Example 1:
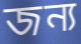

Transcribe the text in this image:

জন্য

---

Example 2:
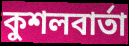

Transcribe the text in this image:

কুশলবার্তা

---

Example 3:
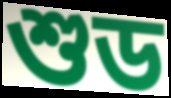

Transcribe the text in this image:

শুড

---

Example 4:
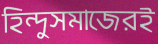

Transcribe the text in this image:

হিন্দুসমাজেরই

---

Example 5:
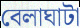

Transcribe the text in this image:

বেলাঘাটা